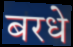
बरधे